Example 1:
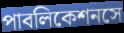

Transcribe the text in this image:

পাবলিকেশনসে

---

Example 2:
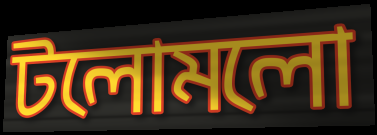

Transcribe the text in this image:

টলোমলো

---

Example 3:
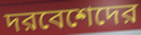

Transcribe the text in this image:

দরবেশেদের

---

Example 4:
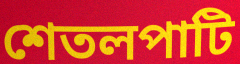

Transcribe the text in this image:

শেতলপাটি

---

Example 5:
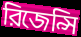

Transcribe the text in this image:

রিজেন্সি